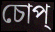
চোপ্